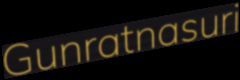
Gunratnasuri